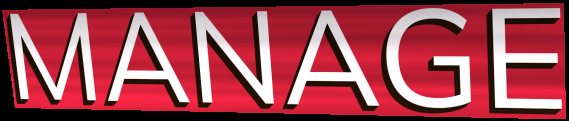
MANAGE